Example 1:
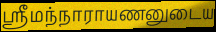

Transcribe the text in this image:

ஸ்ரீமந்நாராயணனுடைய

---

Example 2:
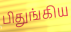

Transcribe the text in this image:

பிதுங்கிய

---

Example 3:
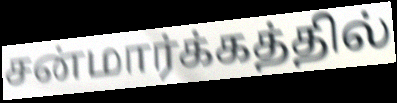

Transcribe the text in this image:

சன்மார்க்கத்தில்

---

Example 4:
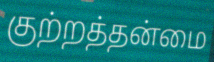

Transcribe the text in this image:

குற்றத்தன்மை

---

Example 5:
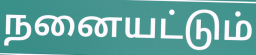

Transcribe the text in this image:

நனையட்டும்